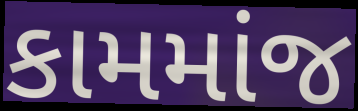
કામમાંજ